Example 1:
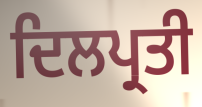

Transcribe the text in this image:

ਦਿਲਪ੍ਰਤੀ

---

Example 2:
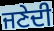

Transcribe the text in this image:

ਜਣੇਦੀ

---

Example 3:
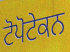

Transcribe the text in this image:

ਟੋਪੋਟੇਕਨ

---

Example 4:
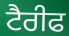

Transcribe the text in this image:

ਟੈਰੀਫ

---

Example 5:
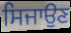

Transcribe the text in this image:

ਸਿਜਾਉਣ